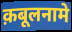
क़बूलनामे